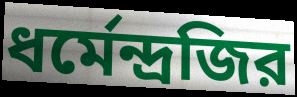
ধর্মেন্দ্রজির